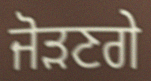
ਜੋੜਣਗੇ